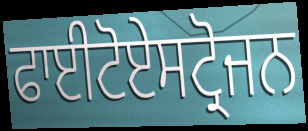
ਫਾਈਟੋਏਸਟ੍ਰੋਜਨ